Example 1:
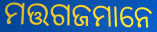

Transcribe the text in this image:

ମତ୍ତଗଜମାନେ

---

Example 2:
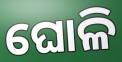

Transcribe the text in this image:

ଘୋଳି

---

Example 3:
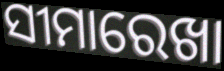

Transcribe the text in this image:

ସୀମାରେଖା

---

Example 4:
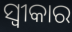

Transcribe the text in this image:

ସ୍ୱୀକାର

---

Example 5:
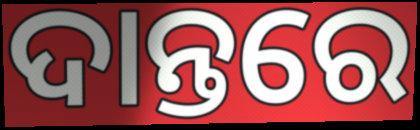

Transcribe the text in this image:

ଦାନ୍ତରେ